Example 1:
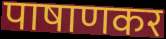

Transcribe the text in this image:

पाषाणकर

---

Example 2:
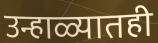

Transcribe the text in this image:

उन्हाळ्यातही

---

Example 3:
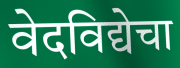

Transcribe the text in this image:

वेदविद्येचा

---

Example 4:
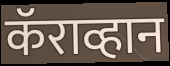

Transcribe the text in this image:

कॅराव्हान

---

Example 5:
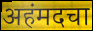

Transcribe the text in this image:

अहंमदचा